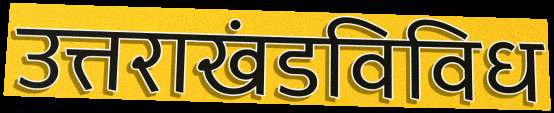
उत्तराखंडविविध